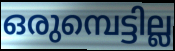
ഒരുമ്പെട്ടില്ല